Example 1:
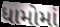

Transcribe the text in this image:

ધામોમાં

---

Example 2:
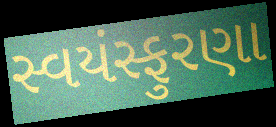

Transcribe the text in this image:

સ્વયંસ્ફુરણા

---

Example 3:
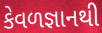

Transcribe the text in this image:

કેવળજ્ઞાનથી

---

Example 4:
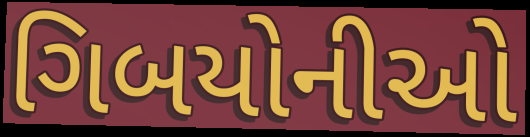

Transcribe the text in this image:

ગિબયોનીઓ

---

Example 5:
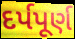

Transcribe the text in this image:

દર્પપૂર્ણ